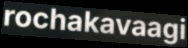
rochakavaagi